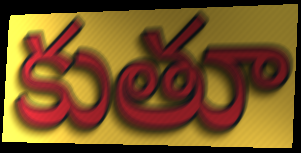
కుతూ